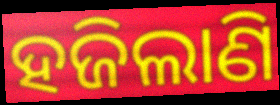
ହଜିଲାଣି